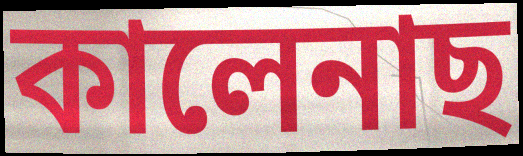
কালেনাছ